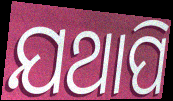
ଯଥାପି